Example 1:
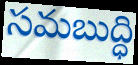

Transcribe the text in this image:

సమబుద్ధి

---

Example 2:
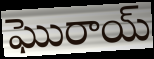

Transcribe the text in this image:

ఘొరాయ్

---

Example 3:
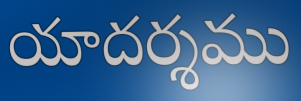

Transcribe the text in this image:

యాదర్శము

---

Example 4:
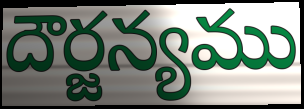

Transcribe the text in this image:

దౌర్జన్యము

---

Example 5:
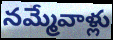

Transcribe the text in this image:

నమ్మేవాళ్లు